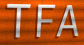
TFA